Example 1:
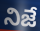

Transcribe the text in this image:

నిజే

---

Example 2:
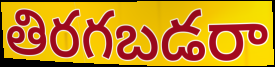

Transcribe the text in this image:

తిరగబడరా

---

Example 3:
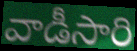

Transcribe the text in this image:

వాడీసారి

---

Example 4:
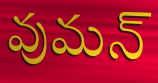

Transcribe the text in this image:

వుమన్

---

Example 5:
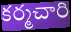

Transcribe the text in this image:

కర్మచారి